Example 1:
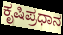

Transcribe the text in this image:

ಕೃಷಿಪ್ರಧಾನ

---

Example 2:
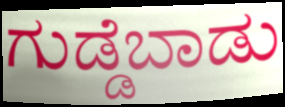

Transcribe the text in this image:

ಗುಡ್ಡೆಬಾಡು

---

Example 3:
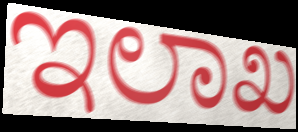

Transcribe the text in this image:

ಇಲಾಖ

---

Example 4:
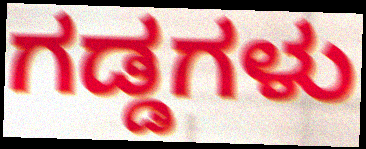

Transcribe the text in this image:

ಗಡ್ಡಗಳು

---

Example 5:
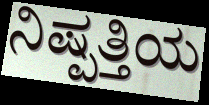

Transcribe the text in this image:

ನಿಷ್ಪತ್ತಿಯ